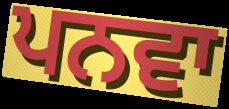
ਪਨਵਾ